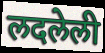
लदलेली